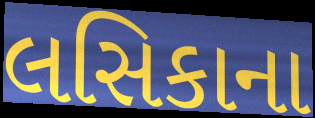
લસિકાના